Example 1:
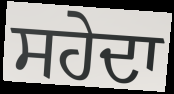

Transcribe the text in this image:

ਸਹੇਦਾ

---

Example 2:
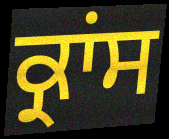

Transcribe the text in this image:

ਕ੍ਰਾਂਸ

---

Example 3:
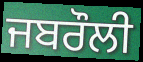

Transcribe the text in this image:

ਜਬਰੌਲੀ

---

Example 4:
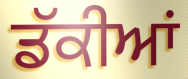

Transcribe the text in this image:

ਡੱਕੀਆਂ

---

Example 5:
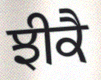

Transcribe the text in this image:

ਝੀਕੈ